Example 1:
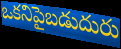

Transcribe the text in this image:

ఒకనిపైబడుదురు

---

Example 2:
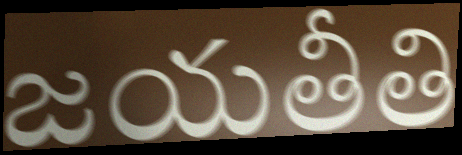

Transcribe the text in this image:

జయతీతి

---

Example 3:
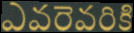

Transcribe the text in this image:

ఎవరెవరికి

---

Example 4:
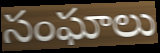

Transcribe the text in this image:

సంఘాలు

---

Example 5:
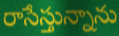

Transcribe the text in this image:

రాసేస్తున్నాను